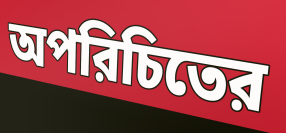
অপরিচিতের